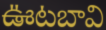
ఊటబావి